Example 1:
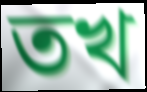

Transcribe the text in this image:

তখ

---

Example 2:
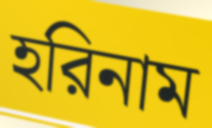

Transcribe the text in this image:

হরিনাম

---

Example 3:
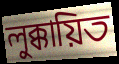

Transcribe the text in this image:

লুক্কায়িত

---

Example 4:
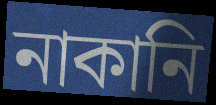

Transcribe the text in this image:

নাকানি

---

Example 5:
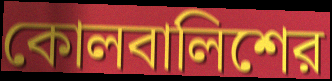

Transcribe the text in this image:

কোলবালিশের